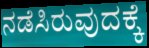
ನಡೆಸಿರುವುದಕ್ಕೆ